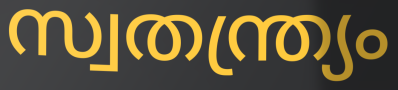
സ്വതന്ത്ര്യം